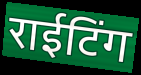
राईटिंग